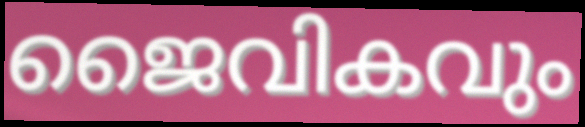
ജൈവികവും